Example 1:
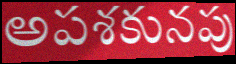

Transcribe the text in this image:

అపశకునపు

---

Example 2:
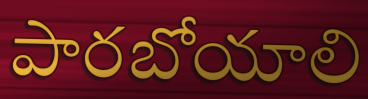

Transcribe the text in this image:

పారబోయాలి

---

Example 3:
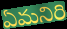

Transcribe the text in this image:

ఏమనిరి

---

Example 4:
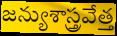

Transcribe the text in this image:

జన్యుశాస్త్రవేత్త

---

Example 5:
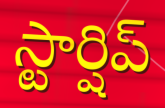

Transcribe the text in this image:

స్టార్షిప్